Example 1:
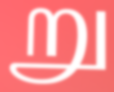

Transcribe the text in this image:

று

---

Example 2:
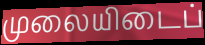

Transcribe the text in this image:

முலையிடைப்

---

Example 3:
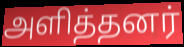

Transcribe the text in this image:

அளித்தனர்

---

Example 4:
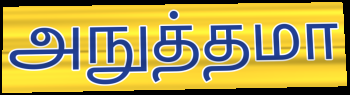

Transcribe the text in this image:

அநுத்தமா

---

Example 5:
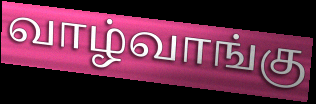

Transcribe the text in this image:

வாழ்வாங்கு